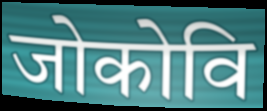
जोकोवि